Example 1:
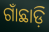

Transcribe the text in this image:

ଗାଁଛାଡ଼ି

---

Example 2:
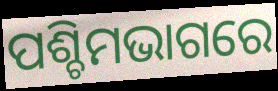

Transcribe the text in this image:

ପଶ୍ଚିମଭାଗରେ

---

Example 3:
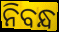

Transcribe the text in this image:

ନିବନ୍ଧ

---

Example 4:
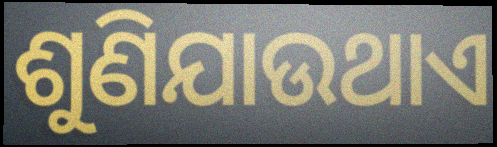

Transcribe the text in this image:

ଶୁଣିଯାଉଥାଏ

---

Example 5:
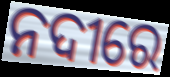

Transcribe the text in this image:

ନଦୀରେ